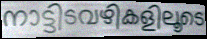
നാട്ടിടവഴികളിലൂടെ